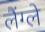
लैंग्ले